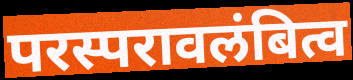
परस्परावलंबित्व